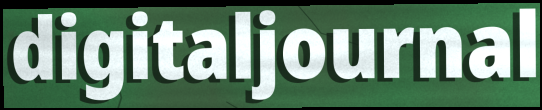
digitaljournal